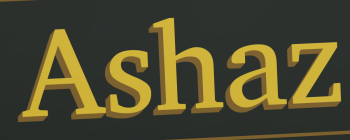
Ashaz